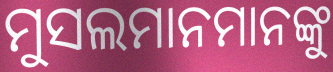
ମୁସଲମାନମାନଙ୍କୁ